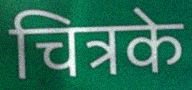
चित्रके